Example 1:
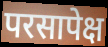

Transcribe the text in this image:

परसापेक्ष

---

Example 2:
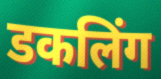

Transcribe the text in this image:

डकलिंग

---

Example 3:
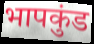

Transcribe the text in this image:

भापकुंड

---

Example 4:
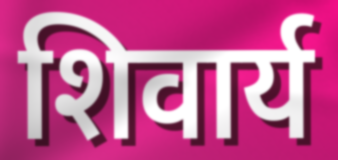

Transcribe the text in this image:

शिवार्य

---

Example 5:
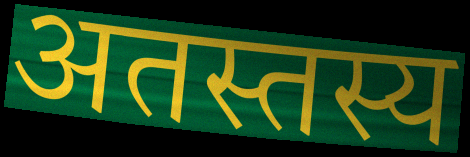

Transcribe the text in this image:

अतस्तस्य